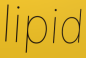
lipid